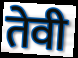
तेवी